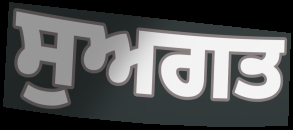
ਸੁਅਗਤ